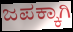
ಜಪಕ್ಕಾಗಿ